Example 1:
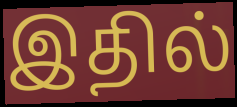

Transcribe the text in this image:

இதில்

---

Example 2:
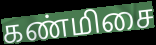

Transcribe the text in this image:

கண்மிசை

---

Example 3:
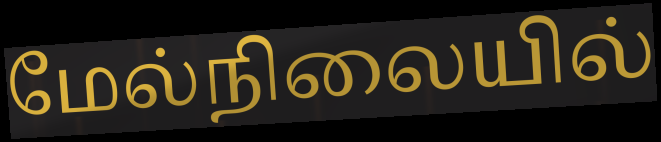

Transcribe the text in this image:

மேல்நிலையில்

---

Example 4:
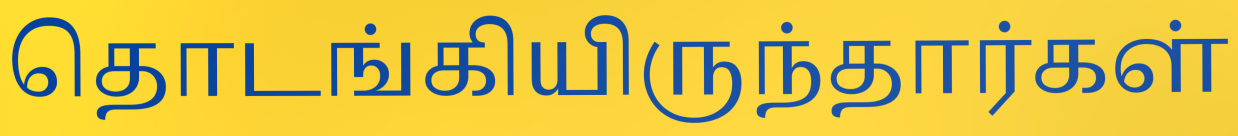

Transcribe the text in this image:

தொடங்கியிருந்தார்கள்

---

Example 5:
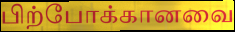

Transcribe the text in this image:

பிற்போக்கானவை